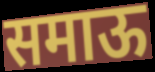
समाऊ